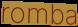
romba